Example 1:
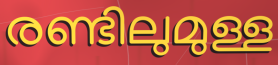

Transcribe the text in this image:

രണ്ടിലുമുള്ള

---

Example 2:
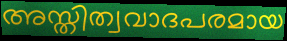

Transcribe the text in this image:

അസ്തിത്വവാദപരമായ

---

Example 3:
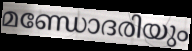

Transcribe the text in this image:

മണ്ഡോദരിയും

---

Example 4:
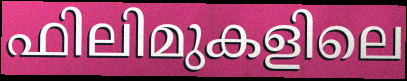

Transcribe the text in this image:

ഫിലിമുകളിലെ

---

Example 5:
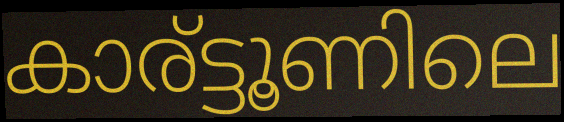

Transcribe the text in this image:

കാര്ട്ടൂണിലെ